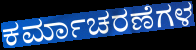
ಕರ್ಮಾಚರಣೆಗಳ